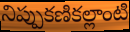
నిప్పుకణికల్లాంటి